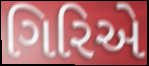
ગિરિએ